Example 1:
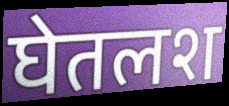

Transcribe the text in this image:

घेतलश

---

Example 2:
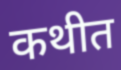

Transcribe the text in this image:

कथीत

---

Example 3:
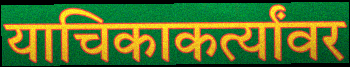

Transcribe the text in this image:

याचिकाकर्त्यांवर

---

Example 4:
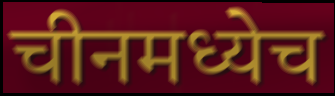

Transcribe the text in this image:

चीनमध्येच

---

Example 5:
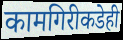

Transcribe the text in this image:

कामगिरीकडेही